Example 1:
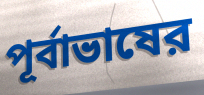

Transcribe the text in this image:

পূর্বাভাষের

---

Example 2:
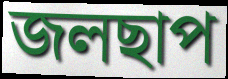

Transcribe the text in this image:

জলছাপ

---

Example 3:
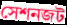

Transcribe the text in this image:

সেশনজট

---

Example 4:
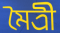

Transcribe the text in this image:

মৈত্রী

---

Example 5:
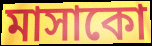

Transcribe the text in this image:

মাসাকো